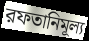
রফতানিমূল্য